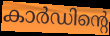
കാർഡിന്റെ